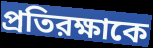
প্রতিরক্ষাকে